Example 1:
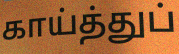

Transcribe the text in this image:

காய்த்துப்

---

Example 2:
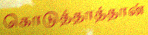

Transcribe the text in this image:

கொடுத்தாத்தான்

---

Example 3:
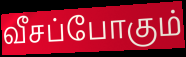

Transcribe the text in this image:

வீசப்போகும்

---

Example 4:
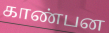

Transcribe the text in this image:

காண்பன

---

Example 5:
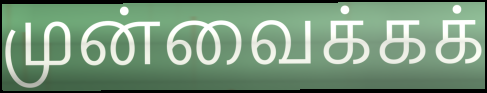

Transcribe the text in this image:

முன்வைக்கக்